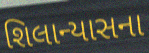
શિલાન્યાસના